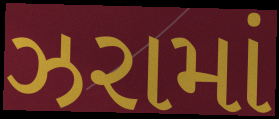
ઝરામાં